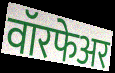
वॉरफेअर